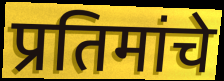
प्रतिमांचे